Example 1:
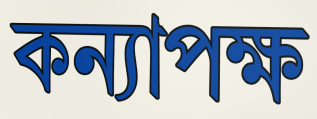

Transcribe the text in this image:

কন্যাপক্ষ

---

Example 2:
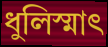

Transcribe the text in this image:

ধুলিস্মাৎ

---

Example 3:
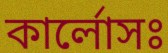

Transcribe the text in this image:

কার্লোসঃ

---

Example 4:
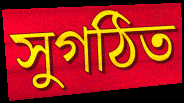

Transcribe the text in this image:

সুগঠিত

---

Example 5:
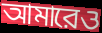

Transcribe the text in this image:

আমারেও